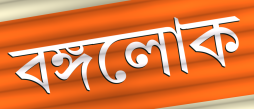
বঙ্গলোক